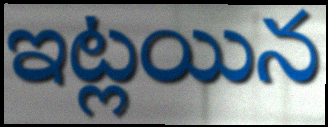
ఇట్లయిన